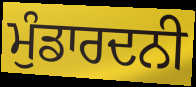
ਮੁੰਡਾਰਦਨੀ